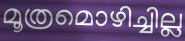
മൂത്രമൊഴിച്ചില്ല